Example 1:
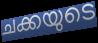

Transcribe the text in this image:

ചക്കയുടെ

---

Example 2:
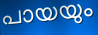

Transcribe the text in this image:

പായയും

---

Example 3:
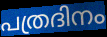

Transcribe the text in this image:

പത്രദിനം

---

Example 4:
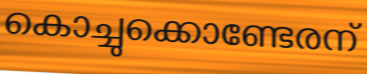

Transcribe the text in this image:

കൊച്ചുക്കൊണ്ടേരന്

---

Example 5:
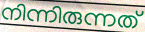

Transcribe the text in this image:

നിന്നിരുന്നത്